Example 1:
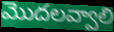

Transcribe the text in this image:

మొదలవ్వాలి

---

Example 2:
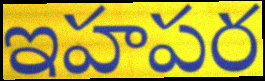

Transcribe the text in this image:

ఇహపర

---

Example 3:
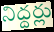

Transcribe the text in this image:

నిద్దర్లు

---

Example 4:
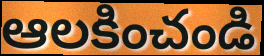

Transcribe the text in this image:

ఆలకించండి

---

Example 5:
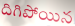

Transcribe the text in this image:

దిగిపోయిన